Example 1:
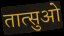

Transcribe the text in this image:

तात्सुओ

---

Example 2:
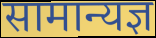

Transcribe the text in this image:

सामान्यज्ञ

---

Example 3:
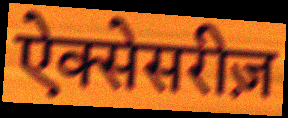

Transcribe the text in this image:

ऐक्सेसरीज़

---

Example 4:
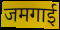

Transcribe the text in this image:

जमगाई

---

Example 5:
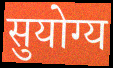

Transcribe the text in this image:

सुयोग्य